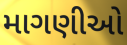
માગણીઓ